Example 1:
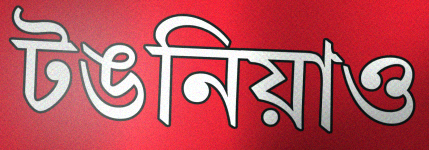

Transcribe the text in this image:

টঙনিয়াও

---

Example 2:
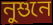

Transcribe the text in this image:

নুশুনে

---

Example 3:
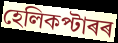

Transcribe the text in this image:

হেলিকপ্টাৰৰ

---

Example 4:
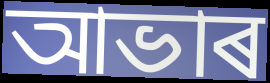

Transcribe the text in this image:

আভাৰ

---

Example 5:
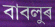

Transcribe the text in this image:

বাবলুৰ